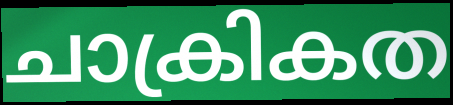
ചാക്രികത